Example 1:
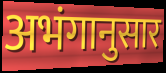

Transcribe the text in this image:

अभंगानुसार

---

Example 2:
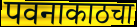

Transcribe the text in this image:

पवनाकाठचा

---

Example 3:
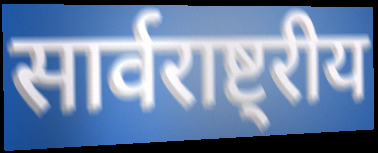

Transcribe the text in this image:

सार्वराष्ट्रीय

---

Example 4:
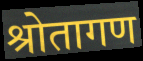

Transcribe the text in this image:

श्रोतागण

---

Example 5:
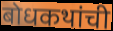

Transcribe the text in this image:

बोधकथांची